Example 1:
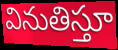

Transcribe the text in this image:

వినుతిస్తూ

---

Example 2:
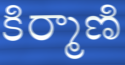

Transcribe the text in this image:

కిర్మాణి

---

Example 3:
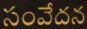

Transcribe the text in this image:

సంవేదన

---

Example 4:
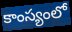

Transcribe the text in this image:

కాంస్యంలో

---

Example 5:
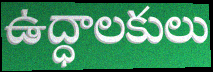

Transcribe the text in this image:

ఉద్ధాలకులు